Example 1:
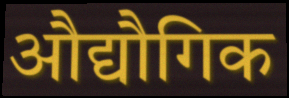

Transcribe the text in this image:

औद्यौगिक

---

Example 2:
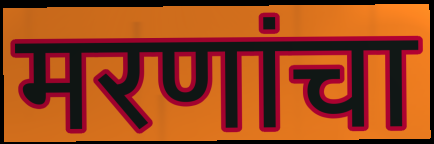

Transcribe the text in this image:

मरणांचा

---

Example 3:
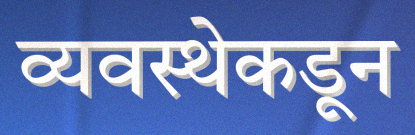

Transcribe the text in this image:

व्यवस्थेकडून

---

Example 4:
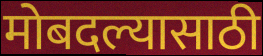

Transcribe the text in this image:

मोबदल्यासाठी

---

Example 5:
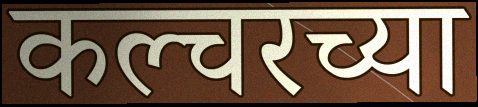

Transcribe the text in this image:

कल्चरच्या